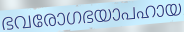
ഭവരോഗഭയാപഹായ